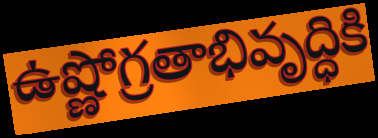
ఉష్ణోగ్రతాభివృద్ధికి